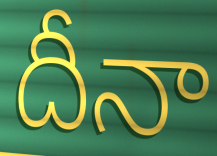
దీనా